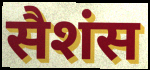
सैशंस